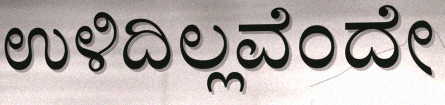
ಉಳಿದಿಲ್ಲವೆಂದೇ